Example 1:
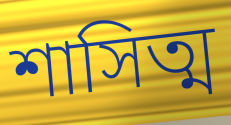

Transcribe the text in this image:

শাসিত্ম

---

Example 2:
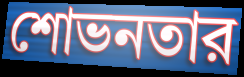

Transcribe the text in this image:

শোভনতার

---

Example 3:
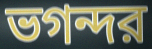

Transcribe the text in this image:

ভগন্দর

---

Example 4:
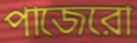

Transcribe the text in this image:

পাজেরো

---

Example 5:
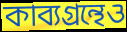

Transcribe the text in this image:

কাব্যগ্রন্থেও